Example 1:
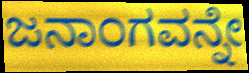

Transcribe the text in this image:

ಜನಾಂಗವನ್ನೇ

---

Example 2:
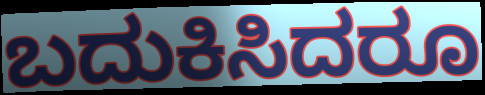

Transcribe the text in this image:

ಬದುಕಿಸಿದರೂ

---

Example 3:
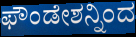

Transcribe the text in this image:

ಫೌಂಡೇಶನ್ನಿಂದ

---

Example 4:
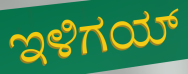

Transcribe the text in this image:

ಇಳಿಗಯ್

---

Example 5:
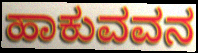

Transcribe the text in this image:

ಹಾಕುವವನ